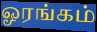
ஓரங்கம்